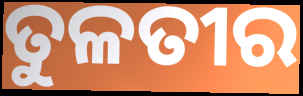
ତୁଳତୀର